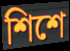
শিশে